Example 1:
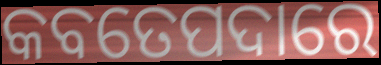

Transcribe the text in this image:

କବତେପଦାରେ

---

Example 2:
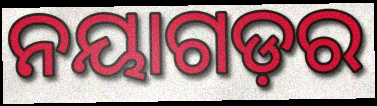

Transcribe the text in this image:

ନୟାଗଡ଼ର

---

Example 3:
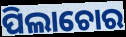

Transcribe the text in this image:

ପିଲାଚୋର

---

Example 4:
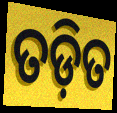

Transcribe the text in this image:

ତଡ଼ିତ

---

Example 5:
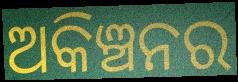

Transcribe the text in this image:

ଅକିଞ୍ଚନର